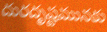
దురదృష్టమునకు